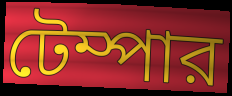
টেম্পার